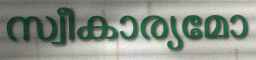
സ്വീകാര്യമോ